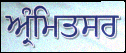
ਅ੍ਰੰਮਿਤਸਰ